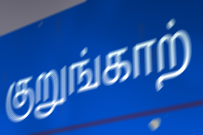
குறுங்காற்